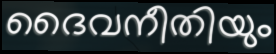
ദൈവനീതിയും